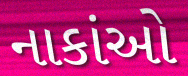
નાકાંઓ